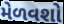
મેળવશો